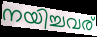
നയിച്ചവര്